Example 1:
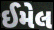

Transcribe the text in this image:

ઈમેલ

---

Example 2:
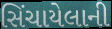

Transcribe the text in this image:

સિંચાયેલાની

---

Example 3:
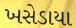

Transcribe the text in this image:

ખસેડાયા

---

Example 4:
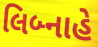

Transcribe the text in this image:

લિબ્નાહે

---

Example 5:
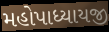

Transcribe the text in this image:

મહોપાધ્યાયજી